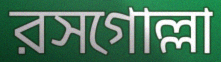
রসগোল্লা